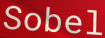
Sobel